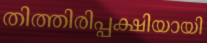
തിത്തിരിപ്പക്ഷിയായി